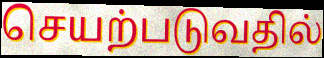
செயற்படுவதில்